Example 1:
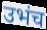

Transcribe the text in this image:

उभंच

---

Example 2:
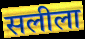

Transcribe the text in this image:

सलीला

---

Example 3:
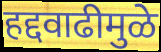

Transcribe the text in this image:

हद्दवाढीमुळे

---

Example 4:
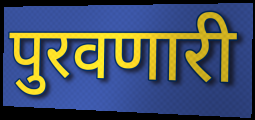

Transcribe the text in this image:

पुरवणारी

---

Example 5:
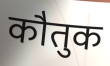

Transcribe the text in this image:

कौतुक